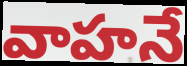
వాహనే